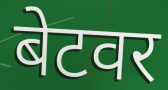
बेटवर